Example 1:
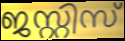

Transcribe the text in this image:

ജസ്റ്റിസ്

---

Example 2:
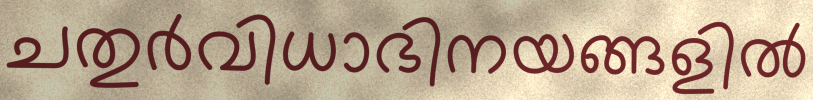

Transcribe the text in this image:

ചതുർവിധാഭിനയങ്ങളിൽ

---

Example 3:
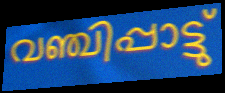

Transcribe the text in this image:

വഞ്ചിപ്പാട്ടു്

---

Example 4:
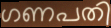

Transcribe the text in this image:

ഗണപതി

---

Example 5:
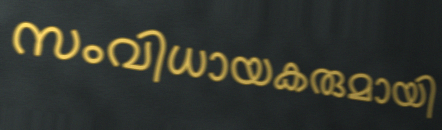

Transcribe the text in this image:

സംവിധായകരുമായി